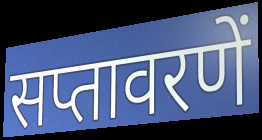
सप्तावरणें